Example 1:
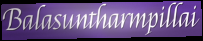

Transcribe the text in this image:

Balasuntharmpillai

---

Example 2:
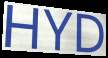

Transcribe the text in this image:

HYD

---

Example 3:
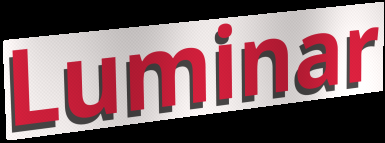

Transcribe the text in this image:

Luminar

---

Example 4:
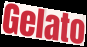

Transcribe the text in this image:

Gelato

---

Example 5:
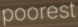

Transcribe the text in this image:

poorest